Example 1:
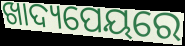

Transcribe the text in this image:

ଖାଦ୍ୟପେୟରେ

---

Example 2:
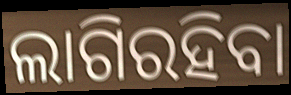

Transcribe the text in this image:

ଲାଗିରହିବା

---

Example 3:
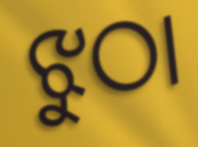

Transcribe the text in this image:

ଝୁଠା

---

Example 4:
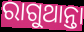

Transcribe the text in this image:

ରାଗୁଥାନ୍ତା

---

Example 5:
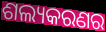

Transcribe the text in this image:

ଶଲ୍ୟକରଣର